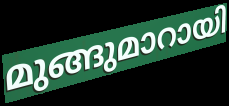
മുങ്ങുമാറായി